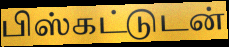
பிஸ்கட்டுடன்